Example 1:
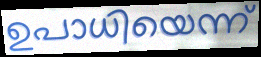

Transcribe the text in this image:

ഉപാധിയെന്ന്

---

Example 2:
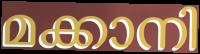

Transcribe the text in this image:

മക്കാനി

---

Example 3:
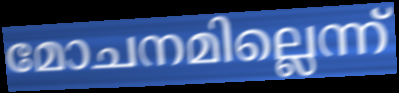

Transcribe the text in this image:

മോചനമില്ലെന്ന്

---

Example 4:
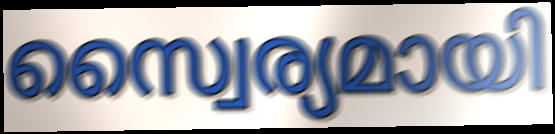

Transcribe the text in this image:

സ്വൈര്യമായി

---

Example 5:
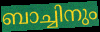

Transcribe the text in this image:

ബാച്ചിനും